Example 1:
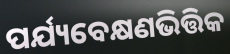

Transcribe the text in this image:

ପର୍ଯ୍ୟବେକ୍ଷଣଭିତ୍ତିକ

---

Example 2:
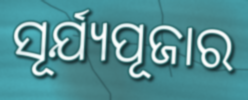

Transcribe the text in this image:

ସୂର୍ଯ୍ୟପୂଜାର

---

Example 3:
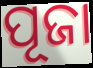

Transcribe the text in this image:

ପୂଜା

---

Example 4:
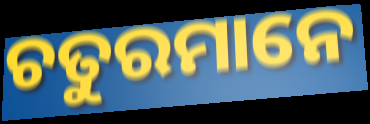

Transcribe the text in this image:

ଚତୁରମାନେ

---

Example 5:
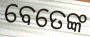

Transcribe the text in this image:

ବେତେଙ୍କ